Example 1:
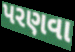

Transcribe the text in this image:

પરણવા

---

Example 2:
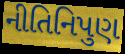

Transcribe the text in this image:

નીતિનિપુણ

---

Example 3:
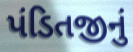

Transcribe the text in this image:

પંડિતજીનું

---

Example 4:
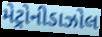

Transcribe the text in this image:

મેટ્રોનીડાઝોલ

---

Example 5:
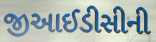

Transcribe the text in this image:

જીઆઈડીસીની